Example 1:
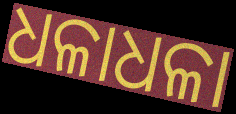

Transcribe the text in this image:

ଧଳାଧଳା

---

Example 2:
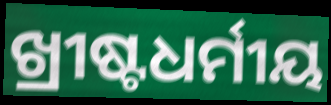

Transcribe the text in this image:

ଖ୍ରୀଷ୍ଟଧର୍ମୀୟ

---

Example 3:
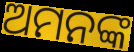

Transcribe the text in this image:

ଅମନଙ୍କ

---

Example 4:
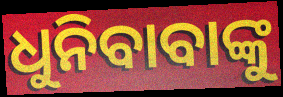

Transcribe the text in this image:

ଧୁନିବାବାଙ୍କୁ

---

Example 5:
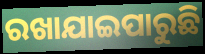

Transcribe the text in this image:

ରଖାଯାଇପାରୁଛି